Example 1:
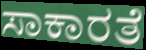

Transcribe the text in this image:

ಸಾಕಾರತೆ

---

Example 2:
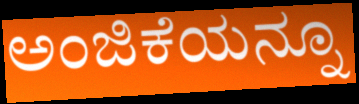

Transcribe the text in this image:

ಅಂಜಿಕೆಯನ್ನೂ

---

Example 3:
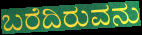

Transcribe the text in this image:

ಬರೆದಿರುವನು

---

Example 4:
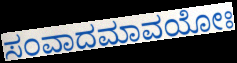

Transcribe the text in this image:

ಸಂವಾದಮಾವಯೋಃ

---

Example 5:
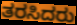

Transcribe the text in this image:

ತರಸಿದರು